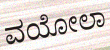
ವಯೋಲಾ